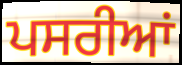
ਪਸਰੀਆਂ